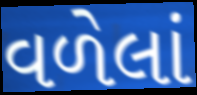
વળેલાં